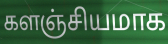
களஞ்சியமாக